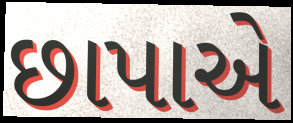
છાપાએ